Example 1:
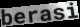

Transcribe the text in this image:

berasi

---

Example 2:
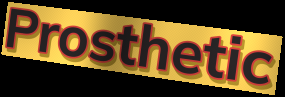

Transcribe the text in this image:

Prosthetic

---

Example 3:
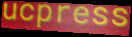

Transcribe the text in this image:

ucpress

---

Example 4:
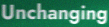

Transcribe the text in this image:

Unchanging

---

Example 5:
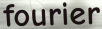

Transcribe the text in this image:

fourier